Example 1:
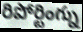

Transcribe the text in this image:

రిపోర్టింగ్ను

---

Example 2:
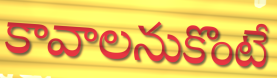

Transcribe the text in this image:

కావాలనుకొంటే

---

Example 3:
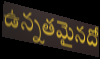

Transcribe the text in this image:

ఉన్నతమైనదో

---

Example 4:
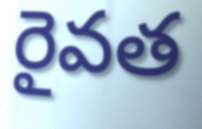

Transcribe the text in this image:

రైవత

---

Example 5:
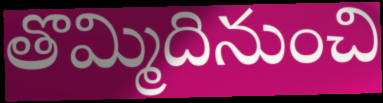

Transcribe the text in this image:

తొమ్మిదినుంచి